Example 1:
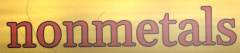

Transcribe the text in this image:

nonmetals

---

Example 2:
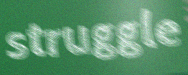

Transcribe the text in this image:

struggle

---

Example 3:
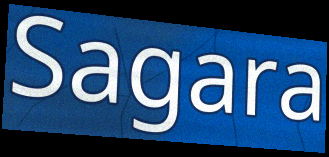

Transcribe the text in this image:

Sagara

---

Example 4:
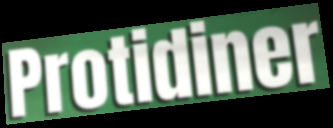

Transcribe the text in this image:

Protidiner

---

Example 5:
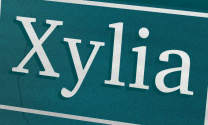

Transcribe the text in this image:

Xylia